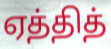
ஏத்தித்